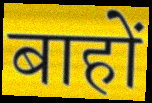
बाहों